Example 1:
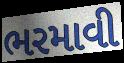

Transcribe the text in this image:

ભરમાવી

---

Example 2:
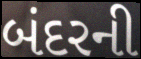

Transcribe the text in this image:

બંદરની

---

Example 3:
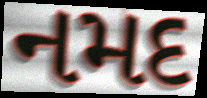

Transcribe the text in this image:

નમદ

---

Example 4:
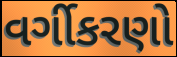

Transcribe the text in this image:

વર્ગીકરણો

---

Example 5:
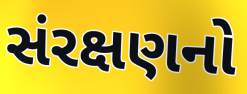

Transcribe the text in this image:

સંરક્ષણનો